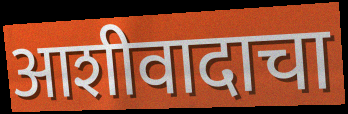
आशीवादाचा